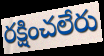
రక్షించలేరు